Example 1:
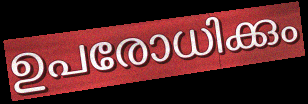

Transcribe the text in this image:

ഉപരോധിക്കും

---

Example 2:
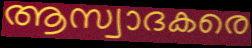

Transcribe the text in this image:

ആസ്വാദകരെ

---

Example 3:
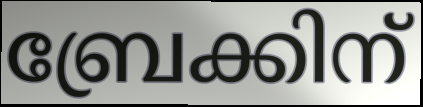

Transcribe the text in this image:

ബ്രേക്കിന്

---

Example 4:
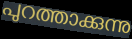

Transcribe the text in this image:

പുറത്താക്കുന്നു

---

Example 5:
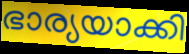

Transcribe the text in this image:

ഭാര്യയാക്കി